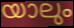
യാലും